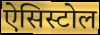
ऐसिस्टोल